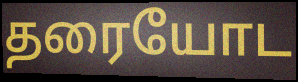
தரையோட